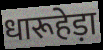
धारूहेड़ा